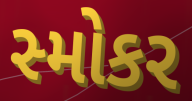
સ્મોકર